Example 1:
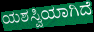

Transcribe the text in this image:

ಯಶಸ್ವಿಯಾಗಿದೆ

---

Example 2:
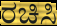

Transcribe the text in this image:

ರಚಿಸಿ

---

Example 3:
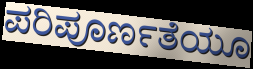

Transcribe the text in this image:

ಪರಿಪೂರ್ಣತೆಯೂ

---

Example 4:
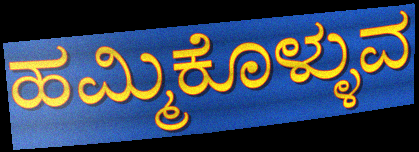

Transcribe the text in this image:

ಹಮ್ಮಿಕೊಳ್ಳುವ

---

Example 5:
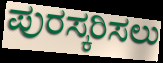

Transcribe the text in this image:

ಪುರಸ್ಕರಿಸಲು